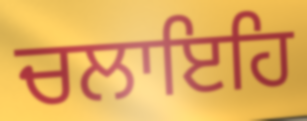
ਚਲਾਇਹਿ